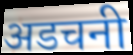
अडचनी